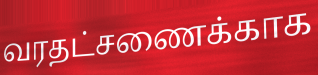
வரதட்சணைக்காக